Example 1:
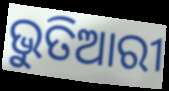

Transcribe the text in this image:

ଭୁତିଆରୀ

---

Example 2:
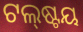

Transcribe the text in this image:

ଟଲ୍‌ଷ୍ଟୟ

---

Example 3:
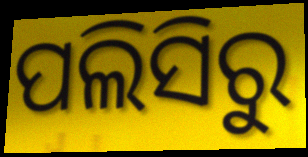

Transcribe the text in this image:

ପଲିସିରୁ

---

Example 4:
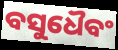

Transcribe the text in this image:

ବସୁଧୈବଂ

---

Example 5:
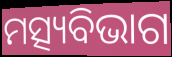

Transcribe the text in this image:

ମତ୍ସ୍ୟବିଭାଗ